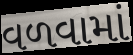
વળવામાં